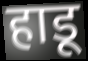
हाडू